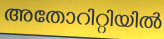
അതോറിറ്റിയിൽ